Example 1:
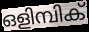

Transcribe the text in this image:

ഒളിമ്പിക്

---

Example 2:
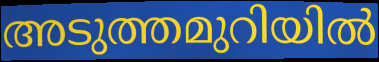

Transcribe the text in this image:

അടുത്തമുറിയിൽ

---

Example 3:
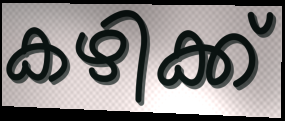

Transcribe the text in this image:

കഴിക്ക്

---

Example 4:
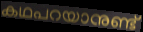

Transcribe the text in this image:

കഥപറയാനുണ്ട്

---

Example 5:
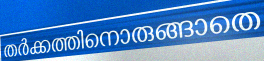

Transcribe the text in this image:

തർക്കത്തിനൊരുങ്ങാതെ